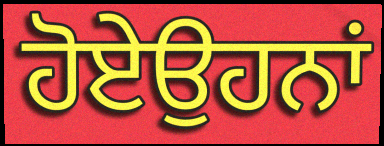
ਹੋਏਉਹਨਾਂ